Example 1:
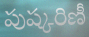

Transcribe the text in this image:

పుష్కరిణీ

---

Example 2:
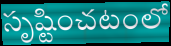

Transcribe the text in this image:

సృష్టించటంలో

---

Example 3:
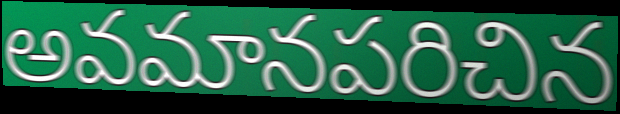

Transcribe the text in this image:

అవమానపరిచిన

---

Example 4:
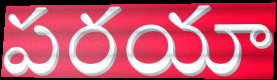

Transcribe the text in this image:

పరయా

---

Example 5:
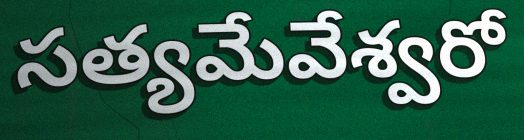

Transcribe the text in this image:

సత్యమేవేశ్వరో